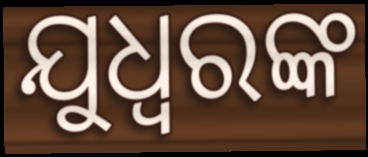
ଯୁଧ୍ୱରଙ୍କ